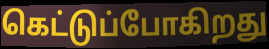
கெட்டுப்போகிறது